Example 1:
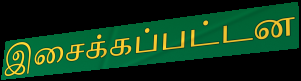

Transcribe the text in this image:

இசைக்கப்பட்டன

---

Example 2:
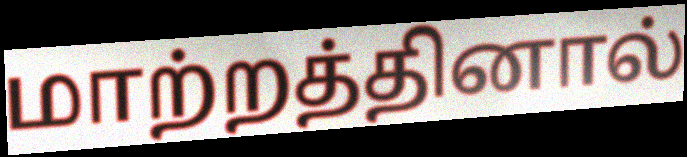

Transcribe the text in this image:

மாற்றத்தினால்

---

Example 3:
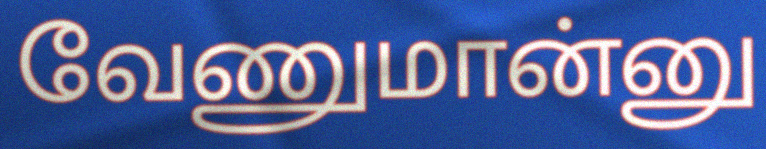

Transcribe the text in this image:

வேணுமான்னு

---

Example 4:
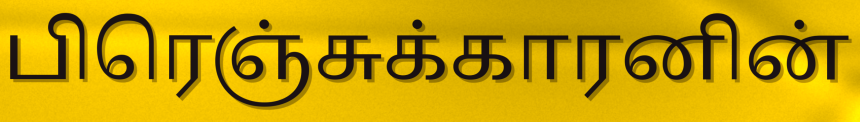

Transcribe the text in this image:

பிரெஞ்சுக்காரனின்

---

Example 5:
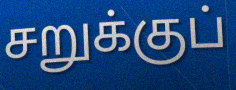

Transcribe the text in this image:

சறுக்குப்